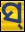
ସ୍